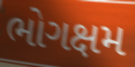
ભોગક્ષમ